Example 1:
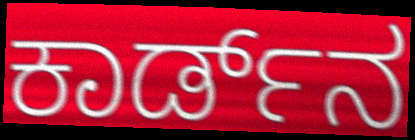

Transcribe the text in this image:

ಕಾರ್ಡ್‌ನ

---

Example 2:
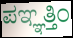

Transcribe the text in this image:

ಪಞ್ಞತ್ತಿಂ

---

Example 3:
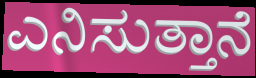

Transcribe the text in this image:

ಎನಿಸುತ್ತಾನೆ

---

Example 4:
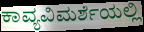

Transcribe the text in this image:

ಕಾವ್ಯವಿಮರ್ಶೆಯಲ್ಲಿ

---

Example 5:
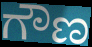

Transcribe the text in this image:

ಗೌಣ